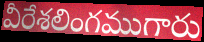
వీరేశలింగముగారు